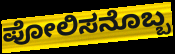
ಪೋಲಿಸನೊಬ್ಬ